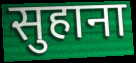
सुहाना